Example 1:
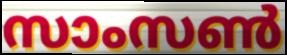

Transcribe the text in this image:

സാംസൺ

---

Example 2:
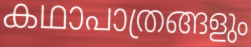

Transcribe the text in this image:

കഥാപാത്രങ്ങളും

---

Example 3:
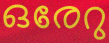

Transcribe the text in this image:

ഒരേറു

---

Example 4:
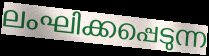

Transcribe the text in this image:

ലംഘിക്കപ്പെടുന്ന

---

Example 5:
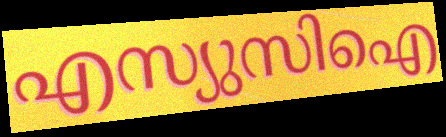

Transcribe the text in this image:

എസ്യുസിഐ